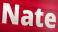
Nate